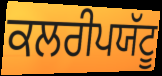
ਕਲਰੀਪਯੱਟੂ